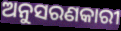
ଅନୁସରଣକାରୀ